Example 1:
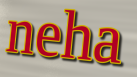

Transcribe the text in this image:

neha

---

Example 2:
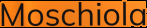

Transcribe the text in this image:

Moschiola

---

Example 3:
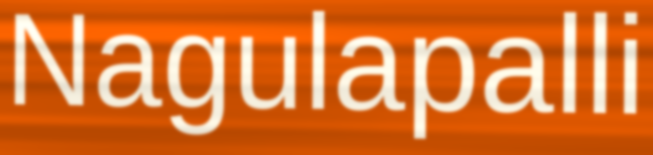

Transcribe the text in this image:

Nagulapalli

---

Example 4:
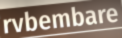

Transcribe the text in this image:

rvbembare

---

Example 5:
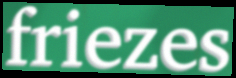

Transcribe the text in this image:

friezes